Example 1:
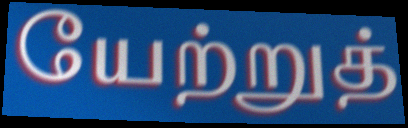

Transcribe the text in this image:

யேற்றுத்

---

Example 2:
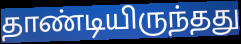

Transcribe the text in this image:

தாண்டியிருந்தது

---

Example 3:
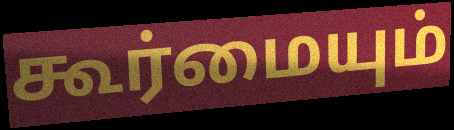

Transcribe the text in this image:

கூர்மையும்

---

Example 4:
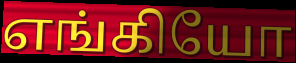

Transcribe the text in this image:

எங்கியோ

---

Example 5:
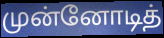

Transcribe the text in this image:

முன்னோடித்